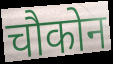
चौकोन